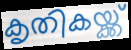
കൃതികയ്ക്ക്